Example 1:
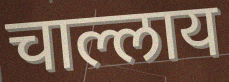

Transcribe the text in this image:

चाल्लाय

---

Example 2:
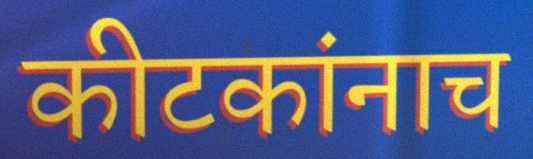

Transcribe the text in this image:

कीटकांनाच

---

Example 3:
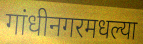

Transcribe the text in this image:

गांधीनगरमधल्या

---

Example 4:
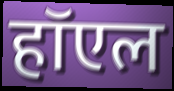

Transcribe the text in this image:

हॉएल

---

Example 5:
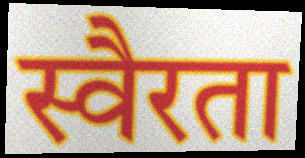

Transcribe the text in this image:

स्वैरता